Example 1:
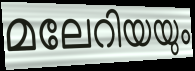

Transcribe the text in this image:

മലേറിയയും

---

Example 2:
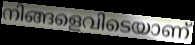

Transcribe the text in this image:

നിങ്ങളെവിടെയാണ്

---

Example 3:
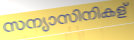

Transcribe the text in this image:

സന്യാസിനികള്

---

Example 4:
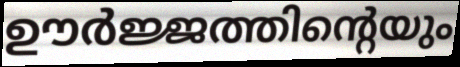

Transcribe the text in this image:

ഊർജ്ജത്തിന്റെയും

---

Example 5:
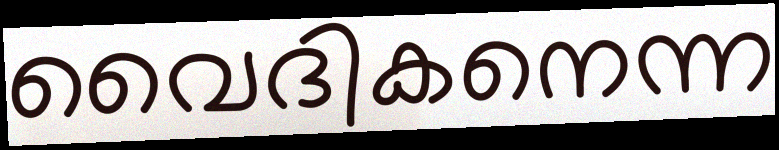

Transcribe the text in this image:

വൈദികനെന്ന